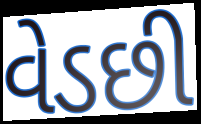
વેડછી